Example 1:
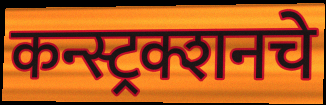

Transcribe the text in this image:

कन्स्ट्रक्शनचे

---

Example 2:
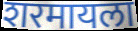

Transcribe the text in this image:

शरमायला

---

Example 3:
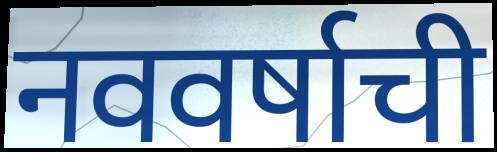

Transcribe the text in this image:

नववर्षाची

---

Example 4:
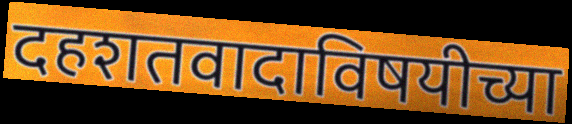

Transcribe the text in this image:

दहशतवादाविषयीच्या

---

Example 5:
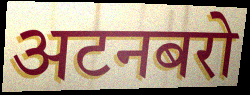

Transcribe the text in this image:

अटनबरो